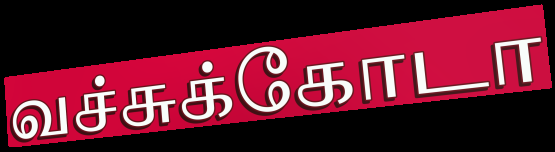
வச்சுக்கோடா